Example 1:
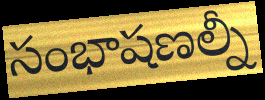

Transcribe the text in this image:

సంభాషణల్నీ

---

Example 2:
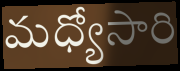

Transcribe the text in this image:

మధ్యోసారి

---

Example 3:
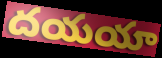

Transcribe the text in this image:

దయయా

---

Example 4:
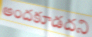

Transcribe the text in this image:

అందకూడదని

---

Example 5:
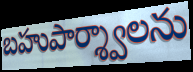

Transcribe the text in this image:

బహుపార్శ్వాలను